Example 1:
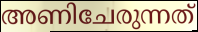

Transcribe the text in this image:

അണിചേരുന്നത്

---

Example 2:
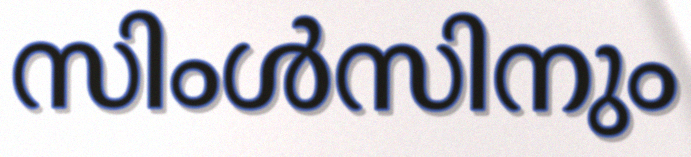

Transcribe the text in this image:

സിംൾസിനും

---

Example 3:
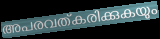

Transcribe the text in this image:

അപരവത്കരിക്കുകയും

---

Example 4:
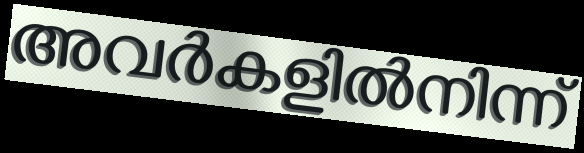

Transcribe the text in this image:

അവർകളിൽനിന്ന്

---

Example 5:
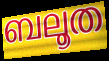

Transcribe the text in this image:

ബലൂത